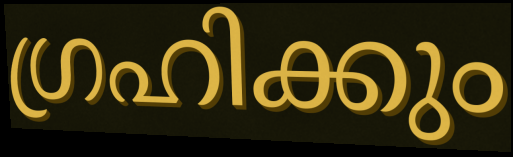
ഗ്രഹിക്കും